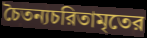
চৈতন্যচরিতামৃতের